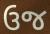
ઉજ